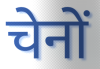
चेनों